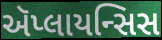
ઍપ્લાયન્સિસ